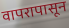
वापरापासून